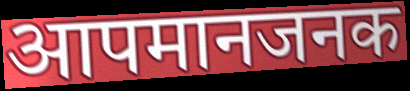
आपमानजनक